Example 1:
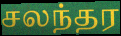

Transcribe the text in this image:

சலந்தர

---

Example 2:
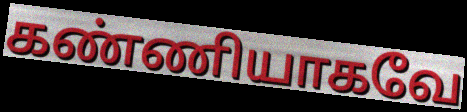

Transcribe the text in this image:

கண்ணியாகவே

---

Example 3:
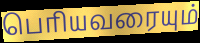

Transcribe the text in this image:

பெரியவரையும்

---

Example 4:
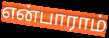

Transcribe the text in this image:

என்பாராம்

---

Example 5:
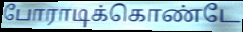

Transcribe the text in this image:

போராடிக்கொண்டே